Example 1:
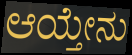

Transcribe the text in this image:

ಆಯ್ತೇನು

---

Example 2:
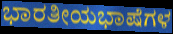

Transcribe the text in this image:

ಭಾರತೀಯಭಾಷೆಗಳ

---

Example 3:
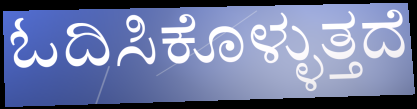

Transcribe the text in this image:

ಓದಿಸಿಕೊಳ್ಳುತ್ತದೆ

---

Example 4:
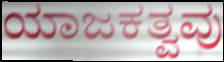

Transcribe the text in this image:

ಯಾಜಕತ್ವವು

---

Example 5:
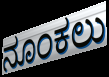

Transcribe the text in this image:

ನೂಂಕಲು